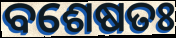
ବଶେଷତଃ